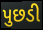
પુછડી